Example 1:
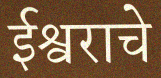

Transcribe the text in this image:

ईश्वराचे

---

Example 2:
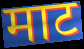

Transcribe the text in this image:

माट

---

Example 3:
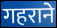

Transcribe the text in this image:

गहराने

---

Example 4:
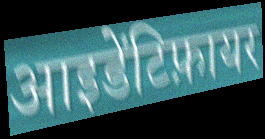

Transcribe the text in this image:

आइडेंटिफ़ायर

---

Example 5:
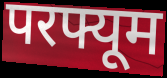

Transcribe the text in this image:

परफ्यूम